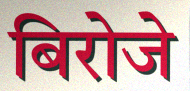
बिरोजे